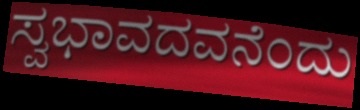
ಸ್ವಭಾವದವನೆಂದು